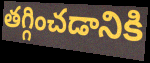
తగ్గించడానికి